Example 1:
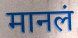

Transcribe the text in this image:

मानलं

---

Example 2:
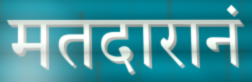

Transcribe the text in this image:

मतदारानं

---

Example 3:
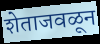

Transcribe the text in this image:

शेताजवळून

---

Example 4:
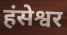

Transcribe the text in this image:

हंसेश्वर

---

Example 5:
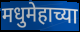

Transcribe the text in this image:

मधुमेहाच्या